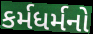
કર્મધર્મનો